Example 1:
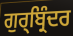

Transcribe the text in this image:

ਗੁਰ੍ਬ੍ਰਿੰਦਰ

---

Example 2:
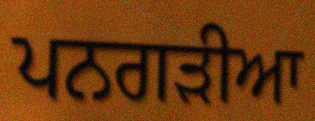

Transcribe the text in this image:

ਪਨਗੜੀਆ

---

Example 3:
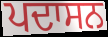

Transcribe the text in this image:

ਪਦਾਸਨ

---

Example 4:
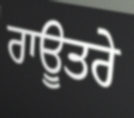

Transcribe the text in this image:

ਰਾਊਤਰੇ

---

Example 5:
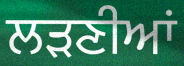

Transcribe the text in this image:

ਲੜਣੀਆਂ